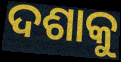
ଦଶାକୁ